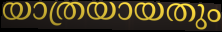
യാത്രയായതും